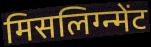
मिसलिग्न्मेंट